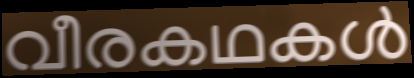
വീരകഥകൾ